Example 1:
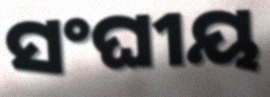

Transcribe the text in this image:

ସଂଘୀୟ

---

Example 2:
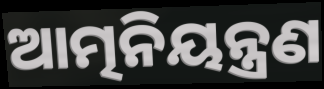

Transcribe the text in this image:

ଆତ୍ମନିୟନ୍ତ୍ରଣ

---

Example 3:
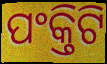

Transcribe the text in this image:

ପଂକ୍ତିଟି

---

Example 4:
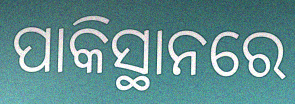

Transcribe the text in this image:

ପାକିସ୍ଥାନରେ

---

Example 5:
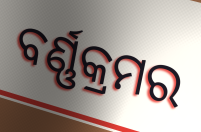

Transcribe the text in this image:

ବର୍ଣ୍ଣକ୍ରମର